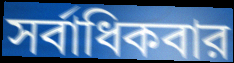
সর্বাধিকবার